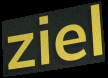
ziel